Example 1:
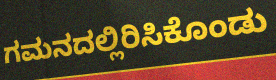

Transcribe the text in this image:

ಗಮನದಲ್ಲಿರಿಸಿಕೊಂಡು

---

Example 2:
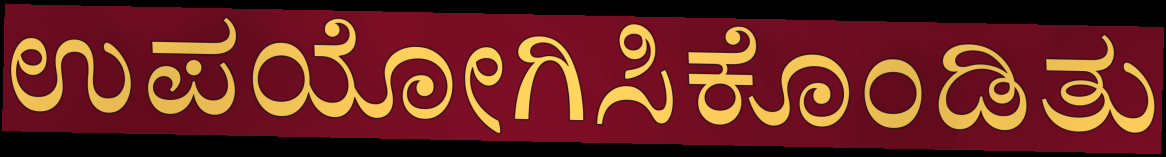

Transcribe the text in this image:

ಉಪಯೋಗಿಸಿಕೊಂಡಿತು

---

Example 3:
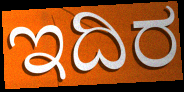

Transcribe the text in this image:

ಇದಿರ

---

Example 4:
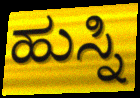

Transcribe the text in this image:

ಹುಸ್ನಿ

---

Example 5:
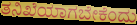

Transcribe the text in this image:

ತನಿಖೆಯಾಗಬೇಕೆಂದು